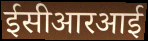
ईसीआरआई